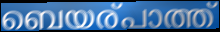
ബെയര്പാത്ത്